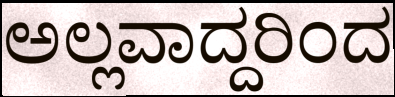
ಅಲ್ಲವಾದ್ದರಿಂದ